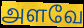
அளவே